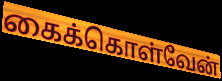
கைக்கொள்வேன்